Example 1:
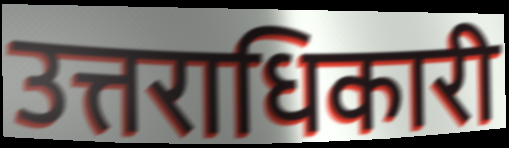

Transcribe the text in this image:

उत्तराधिकारी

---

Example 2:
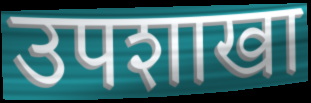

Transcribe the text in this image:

उपशाखा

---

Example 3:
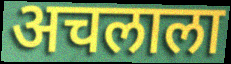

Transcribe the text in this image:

अचलाला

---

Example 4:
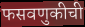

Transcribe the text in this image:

फसवणुकीची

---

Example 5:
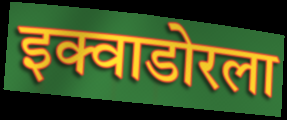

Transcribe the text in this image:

इक्वाडोरला